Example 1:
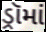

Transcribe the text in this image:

ડ્રૉમાં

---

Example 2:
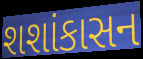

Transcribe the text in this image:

શશાંકાસન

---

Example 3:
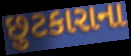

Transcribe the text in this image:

છુટકારાના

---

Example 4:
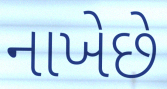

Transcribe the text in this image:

નાખેછે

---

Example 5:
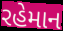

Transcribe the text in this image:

રહેમાન